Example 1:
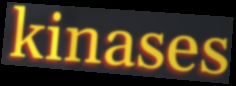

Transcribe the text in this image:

kinases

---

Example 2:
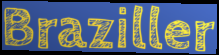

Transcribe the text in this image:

Braziller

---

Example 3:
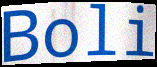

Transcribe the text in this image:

Boli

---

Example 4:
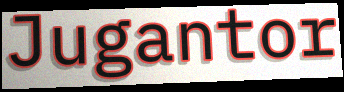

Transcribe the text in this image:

Jugantor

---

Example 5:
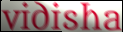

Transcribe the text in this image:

vidisha